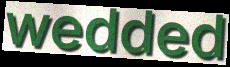
wedded